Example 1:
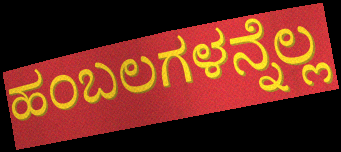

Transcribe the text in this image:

ಹಂಬಲಗಳನ್ನೆಲ್ಲ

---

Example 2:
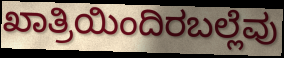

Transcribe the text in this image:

ಖಾತ್ರಿಯಿಂದಿರಬಲ್ಲೆವು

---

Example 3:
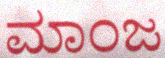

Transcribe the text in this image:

ಮಾಂಜ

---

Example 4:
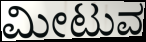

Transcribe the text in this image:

ಮೀಟುವ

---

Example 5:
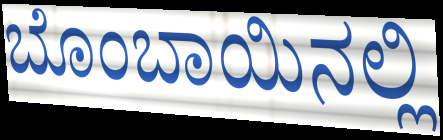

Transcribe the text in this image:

ಬೊಂಬಾಯಿನಲ್ಲಿ